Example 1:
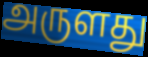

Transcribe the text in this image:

அருளது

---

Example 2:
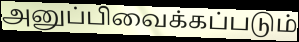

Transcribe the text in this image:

அனுப்பிவைக்கப்படும்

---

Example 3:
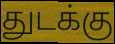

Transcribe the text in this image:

துடக்கு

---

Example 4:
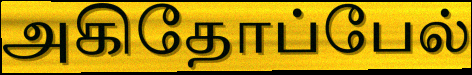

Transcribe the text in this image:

அகிதோப்பேல்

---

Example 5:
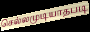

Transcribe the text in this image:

செல்லமுடியாதபடி